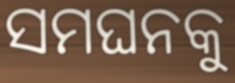
ସମଘନକୁ